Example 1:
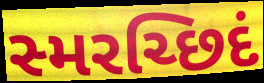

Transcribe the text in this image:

સ્મરચ્છિદં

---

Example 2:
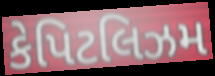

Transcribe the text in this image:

કેપિટલિઝમ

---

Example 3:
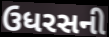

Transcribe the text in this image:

ઉધરસની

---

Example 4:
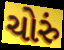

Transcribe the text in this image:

ચોરું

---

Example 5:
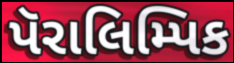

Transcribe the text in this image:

પૅરાલિમ્પિક